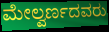
ಮೇಲ್ವರ್ಣದವರು